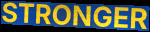
STRONGER